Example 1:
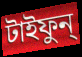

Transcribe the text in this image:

টাইফুন্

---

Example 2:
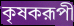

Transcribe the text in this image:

কৃষকরূপী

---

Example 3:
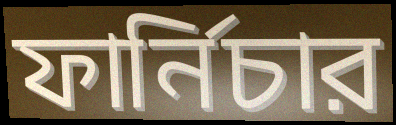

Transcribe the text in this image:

ফার্নিচার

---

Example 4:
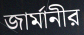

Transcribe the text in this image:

জার্মানীর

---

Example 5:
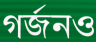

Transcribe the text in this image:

গর্জনও